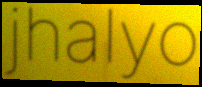
jhalyo